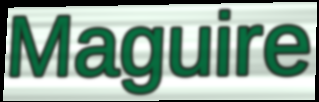
Maguire